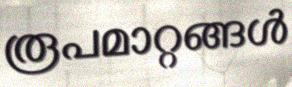
രൂപമാറ്റങ്ങൾ